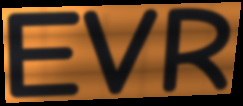
EVR